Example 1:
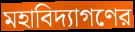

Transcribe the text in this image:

মহাবিদ্যাগণের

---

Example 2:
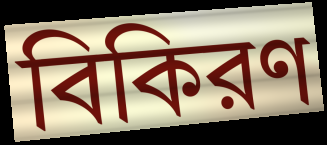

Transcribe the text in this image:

বিকিরণ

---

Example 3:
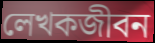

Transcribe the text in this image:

লেখকজীবন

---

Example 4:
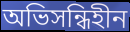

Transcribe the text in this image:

অভিসন্ধিহীন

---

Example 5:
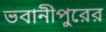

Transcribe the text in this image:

ভবানীপুরের